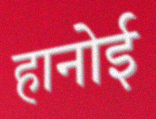
हानोई